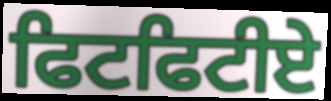
ਫਿਟਫਿਟੀਏ